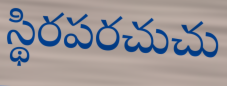
స్థిరపరచుచు